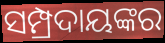
ସମ୍ପ୍ରଦାୟଙ୍କର